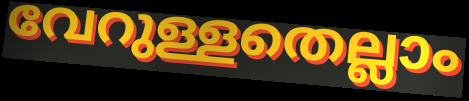
വേറുള്ളതെല്ലാം